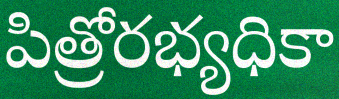
పిత్రోరభ్యధికా